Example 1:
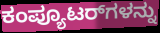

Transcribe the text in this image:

ಕಂಪ್ಯೂಟರ್‌ಗಳನ್ನು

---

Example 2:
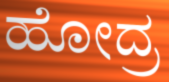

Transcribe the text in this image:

ಹೋದ್ರ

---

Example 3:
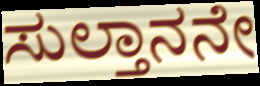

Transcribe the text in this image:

ಸುಲ್ತಾನನೇ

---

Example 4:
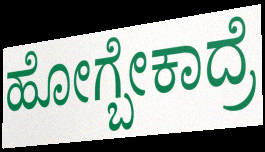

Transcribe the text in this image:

ಹೋಗ್ಬೇಕಾದ್ರೆ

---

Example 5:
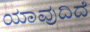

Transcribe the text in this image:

ಯಾವುದಿದೆ